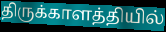
திருக்காளத்தியில்